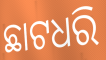
ଛାଟଧରି